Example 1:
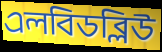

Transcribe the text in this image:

এলবিডব্লিউ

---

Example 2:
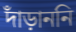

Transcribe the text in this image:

দাঁড়াননি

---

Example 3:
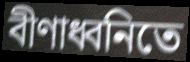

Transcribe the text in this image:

বীণাধ্বনিতে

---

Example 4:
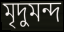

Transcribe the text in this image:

মৃদুমন্দ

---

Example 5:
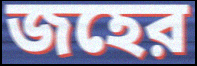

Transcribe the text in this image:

জহের